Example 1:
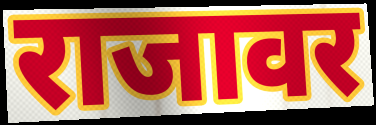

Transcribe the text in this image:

राजावर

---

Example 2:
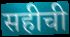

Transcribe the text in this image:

सहीची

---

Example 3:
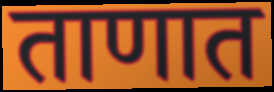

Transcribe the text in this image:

ताणात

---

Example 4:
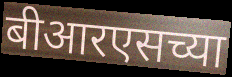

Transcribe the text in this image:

बीआरएसच्या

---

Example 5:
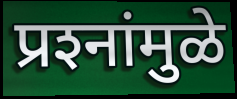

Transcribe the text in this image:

प्रश्‍नांमुळे